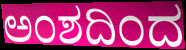
ಅಂಶದಿಂದ